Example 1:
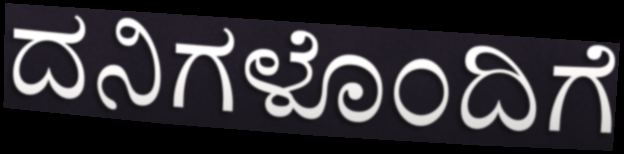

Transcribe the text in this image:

ದನಿಗಳೊಂದಿಗೆ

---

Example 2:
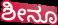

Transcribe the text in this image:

ಶೀನೂ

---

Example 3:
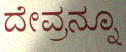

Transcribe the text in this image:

ದೇವ್ರನ್ನೂ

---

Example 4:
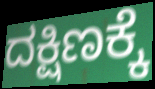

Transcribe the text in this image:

ದಕ್ಷಿಣಕ್ಕೆ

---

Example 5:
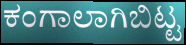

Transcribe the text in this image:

ಕಂಗಾಲಾಗಿಬಿಟ್ಟ